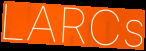
LARCs